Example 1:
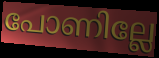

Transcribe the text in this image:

പോണില്ലേ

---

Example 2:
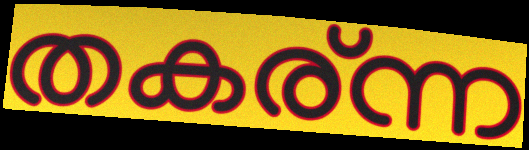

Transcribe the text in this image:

തകര്ന്ന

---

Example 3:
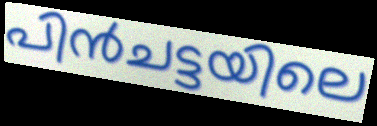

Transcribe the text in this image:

പിൻചട്ടയിലെ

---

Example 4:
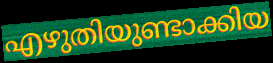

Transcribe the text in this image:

എഴുതിയുണ്ടാക്കിയ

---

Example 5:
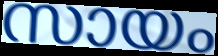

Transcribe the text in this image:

സായം